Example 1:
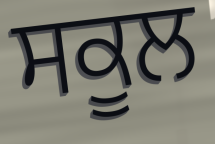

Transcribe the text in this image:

ਸਕੂਲ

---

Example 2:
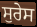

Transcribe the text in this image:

ਸੁਰੇਸ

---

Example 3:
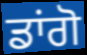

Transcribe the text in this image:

ਡਾਂਗੋ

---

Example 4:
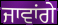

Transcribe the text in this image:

ਜਾਵਾਂਗੇ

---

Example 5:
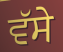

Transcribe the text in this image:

ਵੱਸੇ